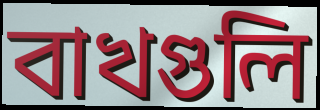
বাখগুলি